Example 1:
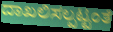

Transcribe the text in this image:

ದಾಖಲಿಸಲ್ಪಟ್ಟಂತೆ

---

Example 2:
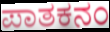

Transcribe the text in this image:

ಪಾತಕನಂ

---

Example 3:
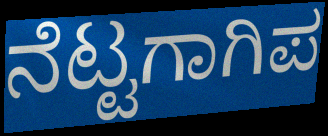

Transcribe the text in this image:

ನೆಟ್ಟಗಾಗಿಪ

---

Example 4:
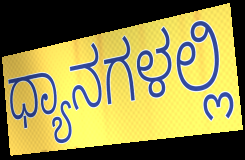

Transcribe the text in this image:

ಧ್ಯಾನಗಳಲ್ಲಿ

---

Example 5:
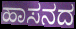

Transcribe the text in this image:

ಹಾಸನದ